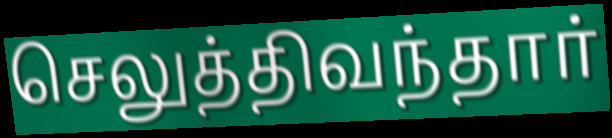
செலுத்திவந்தார்